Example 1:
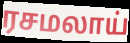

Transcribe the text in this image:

ரசமலாய்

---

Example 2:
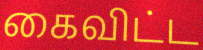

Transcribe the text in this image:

கைவிட்ட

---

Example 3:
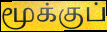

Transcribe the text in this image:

மூக்குப்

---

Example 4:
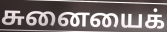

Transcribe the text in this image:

சுனையைக்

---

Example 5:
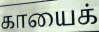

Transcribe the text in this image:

காயைக்